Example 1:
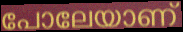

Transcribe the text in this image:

പോലേയാണ്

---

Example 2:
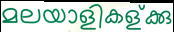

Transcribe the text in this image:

മലയാളികള്ക്കു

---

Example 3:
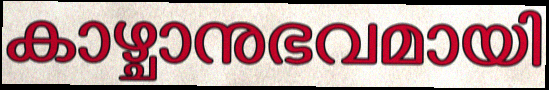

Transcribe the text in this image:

കാഴ്ചാനുഭവമായി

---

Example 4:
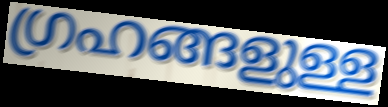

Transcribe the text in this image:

ഗ്രഹങ്ങളുള്ള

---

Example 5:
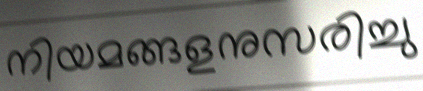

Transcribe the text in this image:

നിയമങ്ങളനുസരിച്ചു